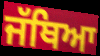
ਜੱਥਿਆ